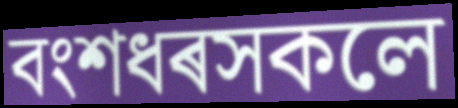
বংশধৰসকলে